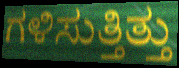
ಗಳಿಸುತ್ತಿತ್ತು